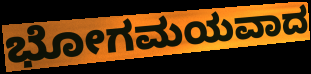
ಭೋಗಮಯವಾದ